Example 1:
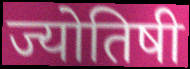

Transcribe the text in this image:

ज्योतिषी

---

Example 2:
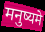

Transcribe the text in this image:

मनुष्यमे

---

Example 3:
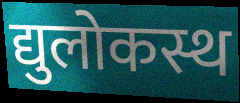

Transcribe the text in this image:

द्युलोकस्थ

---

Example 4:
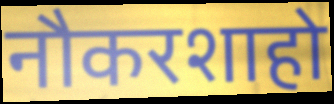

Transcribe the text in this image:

नौकरशाहो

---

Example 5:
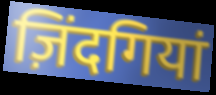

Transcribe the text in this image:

ज़िंदगियां